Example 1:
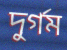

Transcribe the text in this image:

দুর্গম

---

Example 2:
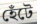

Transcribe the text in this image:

হেঁটে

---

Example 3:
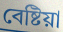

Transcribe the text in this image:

বেষ্টিয়া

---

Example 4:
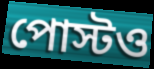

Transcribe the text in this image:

পোস্টও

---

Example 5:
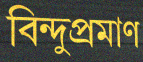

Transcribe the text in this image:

বিন্দুপ্রমাণ